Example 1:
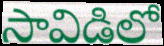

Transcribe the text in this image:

సావిడిలో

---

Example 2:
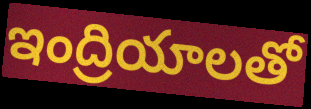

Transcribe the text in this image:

ఇంద్రియాలతో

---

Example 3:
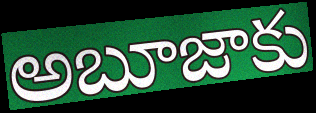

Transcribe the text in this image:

అబూజాకు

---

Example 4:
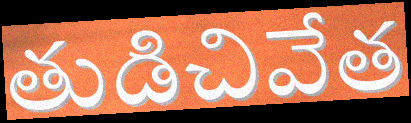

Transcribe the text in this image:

తుడిచివేత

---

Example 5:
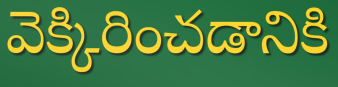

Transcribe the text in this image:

వెక్కిరించడానికి